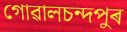
গোৱালচন্দপুৰ